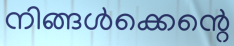
നിങ്ങൾക്കെന്റെ